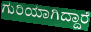
ಗುರಿಯಾಗಿದ್ದಾರೆ